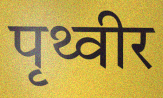
पृथ्वीर